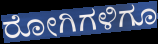
ರೋಗಿಗಳಿಗೂ